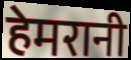
हेमरानी